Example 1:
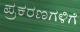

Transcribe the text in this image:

ಪ್ರಕರಣಗಳಿಗೆ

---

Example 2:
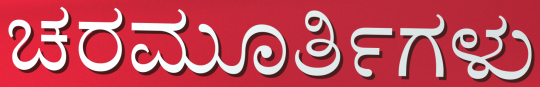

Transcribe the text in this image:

ಚರಮೂರ್ತಿಗಳು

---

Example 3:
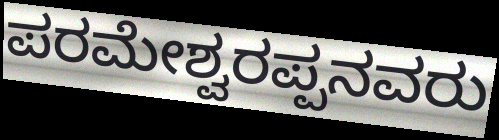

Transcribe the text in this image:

ಪರಮೇಶ್ವರಪ್ಪನವರು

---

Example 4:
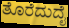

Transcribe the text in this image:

ತೊರೆದುದೈ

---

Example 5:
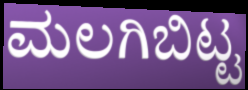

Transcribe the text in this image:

ಮಲಗಿಬಿಟ್ಟ